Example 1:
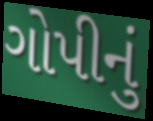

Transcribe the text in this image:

ગોપીનું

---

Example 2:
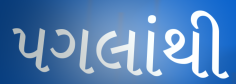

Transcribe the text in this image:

પગલાંથી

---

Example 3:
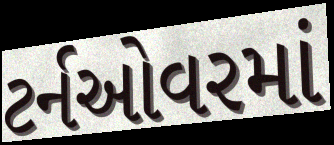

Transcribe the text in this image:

ટર્નઓવરમાં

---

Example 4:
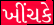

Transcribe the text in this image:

ખીંચકે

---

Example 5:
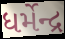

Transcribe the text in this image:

ધર્મેન્દ્ર